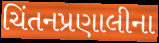
ચિંતનપ્રણાલીના